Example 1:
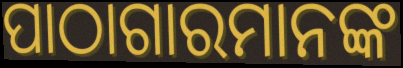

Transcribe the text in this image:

ପାଠାଗାରମାନଙ୍କ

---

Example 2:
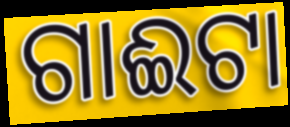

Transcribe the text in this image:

ଗାଈଟା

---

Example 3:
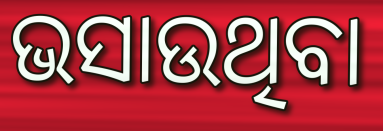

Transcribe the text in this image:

ଭସାଉଥିବା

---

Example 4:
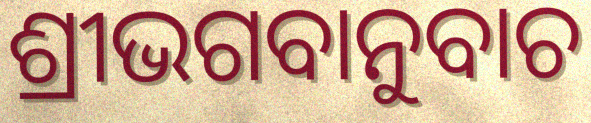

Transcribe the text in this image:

ଶ୍ରୀଭଗବାନୁବାଚ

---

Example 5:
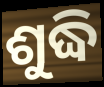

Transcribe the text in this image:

ଶୁଦ୍ଧି